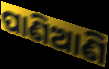
ପାଣିଆଣି